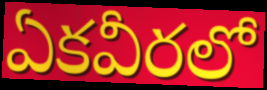
ఏకవీరలో